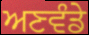
ਅਣਵੰਡੇ